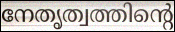
നേതൃത്വത്തിന്റെ